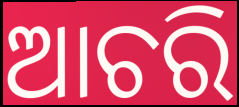
ଆଚରି